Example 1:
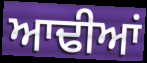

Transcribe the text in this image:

ਆਢੀਆਂ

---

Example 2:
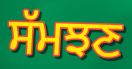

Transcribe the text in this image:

ਸੱਮਝਣ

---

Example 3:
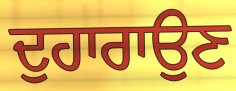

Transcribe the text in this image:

ਦੁਹਾਰਾਉਣ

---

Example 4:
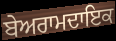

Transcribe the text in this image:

ਬੇਅਰਾਮਦਾਇਕ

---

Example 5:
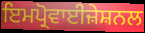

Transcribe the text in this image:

ਇਮਪ੍ਰੋਵਾਈਜ਼ੇਸ਼ਨਲ